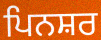
ਪਿਨਸ਼ਰ